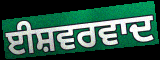
ਈਸ਼ਵਰਵਾਦ